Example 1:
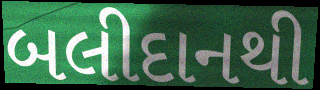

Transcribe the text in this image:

બલીદાનથી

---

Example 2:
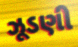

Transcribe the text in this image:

ઝૂડણી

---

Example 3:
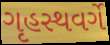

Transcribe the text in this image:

ગૃહસ્થવર્ગે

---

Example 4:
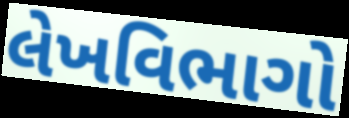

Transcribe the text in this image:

લેખવિભાગો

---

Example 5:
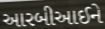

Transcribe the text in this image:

આરબીઆઈને